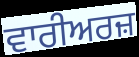
ਵਾਰੀਅਰਜ਼